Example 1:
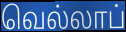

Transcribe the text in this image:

வெல்லாப்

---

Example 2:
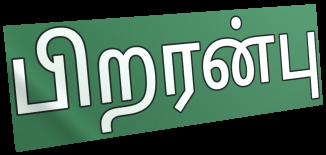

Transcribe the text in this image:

பிறரன்பு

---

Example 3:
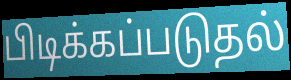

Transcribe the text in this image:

பிடிக்கப்படுதல்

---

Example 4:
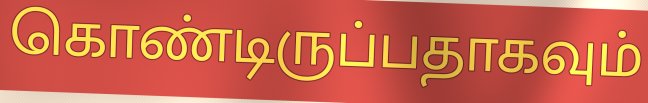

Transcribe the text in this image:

கொண்டிருப்பதாகவும்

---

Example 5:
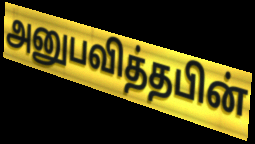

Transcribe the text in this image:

அனுபவித்தபின்